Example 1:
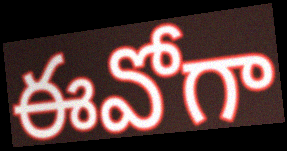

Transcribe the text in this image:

ఈవోగా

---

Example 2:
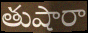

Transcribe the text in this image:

తుషారా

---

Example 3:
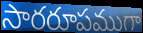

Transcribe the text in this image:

సారరూపముగా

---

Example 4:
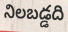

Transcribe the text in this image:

నిలబడ్డది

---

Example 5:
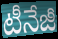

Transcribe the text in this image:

టీనేజీ